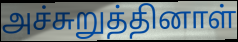
அச்சுறுத்தினாள்